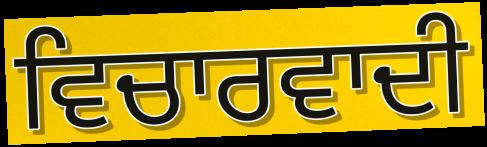
ਵਿਚਾਰਵਾਦੀ